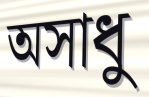
অসাধু